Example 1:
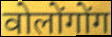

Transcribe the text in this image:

वोलोंगोंग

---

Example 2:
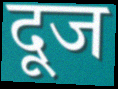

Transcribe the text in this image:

दूज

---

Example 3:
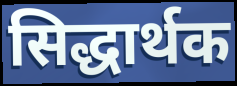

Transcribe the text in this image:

सिद्धार्थक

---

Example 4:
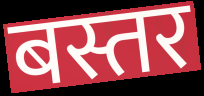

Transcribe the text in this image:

बस्तर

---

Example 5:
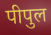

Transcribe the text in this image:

पीपुल